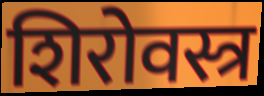
शिरोवस्त्र